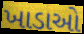
ખાડાઓ